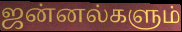
ஜன்னல்களும்